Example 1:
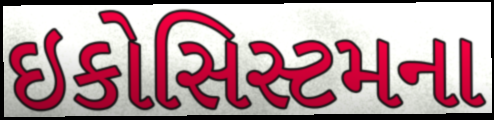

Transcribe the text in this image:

ઇકોસિસ્ટમના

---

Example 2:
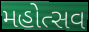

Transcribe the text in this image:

મહોત્સવ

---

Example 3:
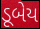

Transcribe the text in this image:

ડૂબેય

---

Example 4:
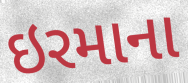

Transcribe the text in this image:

ઇરમાના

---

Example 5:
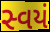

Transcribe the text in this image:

સ્વયં